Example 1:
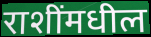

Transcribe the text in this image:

राशींमधील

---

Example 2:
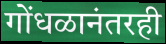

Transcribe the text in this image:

गोंधळानंतरही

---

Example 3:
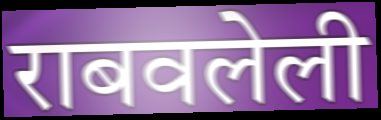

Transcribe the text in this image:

राबवलेली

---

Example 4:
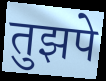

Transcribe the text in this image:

तुझपे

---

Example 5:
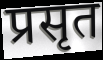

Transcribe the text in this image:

प्रसृत